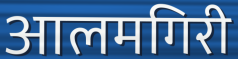
आलमगिरी